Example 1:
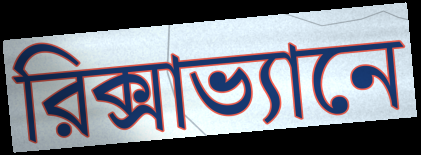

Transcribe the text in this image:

রিক্সাভ্যানে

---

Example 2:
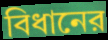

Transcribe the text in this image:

বিধানের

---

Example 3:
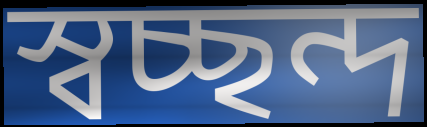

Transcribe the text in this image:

স্বচ্ছন্দ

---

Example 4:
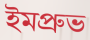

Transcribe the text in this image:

ইমপ্রুভ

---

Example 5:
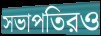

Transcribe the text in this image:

সভাপতিরও